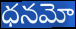
ధనమో